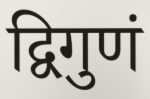
द्विगुणं